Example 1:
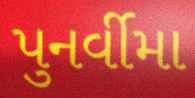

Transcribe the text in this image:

પુનર્વીમા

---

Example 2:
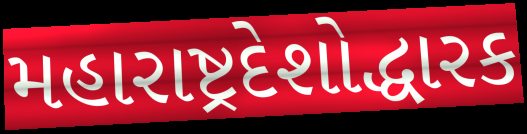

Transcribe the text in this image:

મહારાષ્ટ્રદેશોદ્ધારક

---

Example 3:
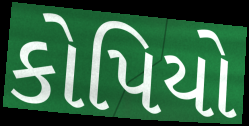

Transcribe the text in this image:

કોપિયો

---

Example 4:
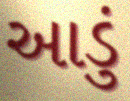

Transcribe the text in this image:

આડું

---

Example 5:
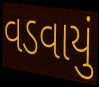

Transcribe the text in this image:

વડવાયું